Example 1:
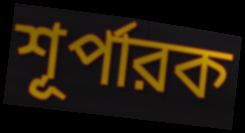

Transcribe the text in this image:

শূর্পারক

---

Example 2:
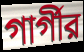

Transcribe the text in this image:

গার্গীর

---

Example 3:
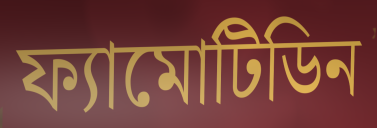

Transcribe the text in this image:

ফ্যামোটিডিন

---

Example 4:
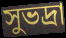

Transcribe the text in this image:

সুভদ্রা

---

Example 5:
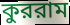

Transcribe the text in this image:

কুররাম